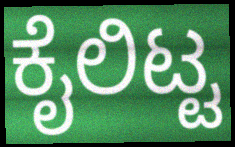
ಕೈಲಿಟ್ಟ